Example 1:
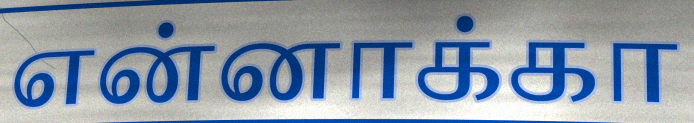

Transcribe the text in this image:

என்னாக்கா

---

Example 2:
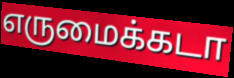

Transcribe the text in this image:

எருமைக்கடா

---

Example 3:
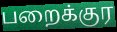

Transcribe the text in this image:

பறைக்குர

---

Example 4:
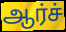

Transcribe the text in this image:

ஆர்ச்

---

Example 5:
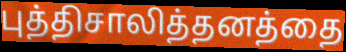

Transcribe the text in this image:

புத்திசாலித்தனத்தை